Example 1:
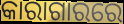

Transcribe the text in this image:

କାରାଗାରରେ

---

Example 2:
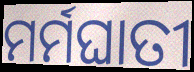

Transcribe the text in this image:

ମର୍ମଘାତୀ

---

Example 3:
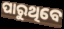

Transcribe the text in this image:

ପାରୁଥିବେ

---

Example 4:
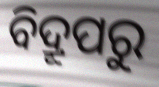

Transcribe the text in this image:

ବିଦ୍ରୂପରୁ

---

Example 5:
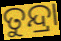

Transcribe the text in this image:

ତୁନ୍ଦ୍ରା